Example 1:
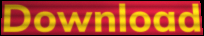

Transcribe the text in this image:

Download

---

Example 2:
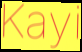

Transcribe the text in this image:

Kayi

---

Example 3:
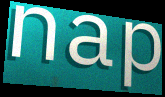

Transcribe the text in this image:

nap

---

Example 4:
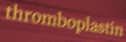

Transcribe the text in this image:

thromboplastin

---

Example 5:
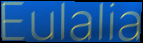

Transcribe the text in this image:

Eulalia